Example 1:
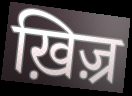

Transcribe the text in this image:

ख़िज़्र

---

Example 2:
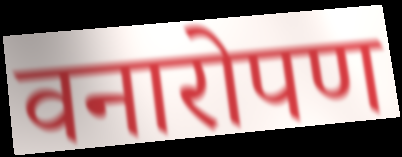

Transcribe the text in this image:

वनारोपण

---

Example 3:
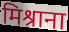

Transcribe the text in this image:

मिश्राना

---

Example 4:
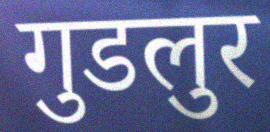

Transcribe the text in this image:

गुडलुर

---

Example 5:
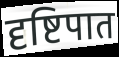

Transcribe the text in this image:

दृष्टिपात